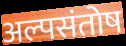
अल्पसंतोष